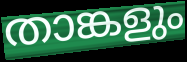
താങ്കളും